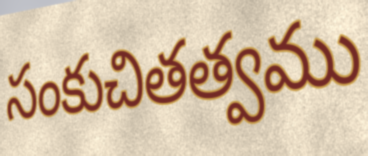
సంకుచితత్వము